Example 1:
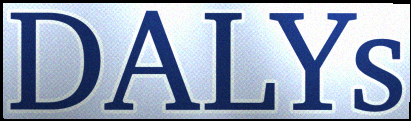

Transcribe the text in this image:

DALYs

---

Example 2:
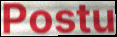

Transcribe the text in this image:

Postu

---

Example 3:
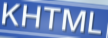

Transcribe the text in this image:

KHTML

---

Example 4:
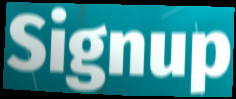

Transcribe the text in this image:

Signup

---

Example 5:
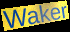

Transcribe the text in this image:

Waker